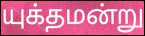
யுக்தமன்று